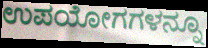
ಉಪಯೋಗಗಳನ್ನೂ